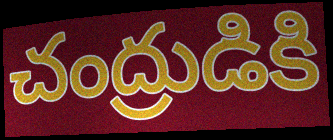
చంద్రుడికి